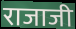
राजाजी